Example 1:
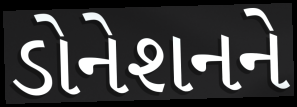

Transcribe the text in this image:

ડોનેશનને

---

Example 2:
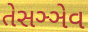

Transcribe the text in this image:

તેસઞ્ઞેવ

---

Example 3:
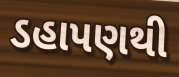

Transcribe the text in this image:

ડહાપણથી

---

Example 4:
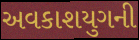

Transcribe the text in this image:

અવકાશયુગની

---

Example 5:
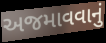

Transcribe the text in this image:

અજમાવવાનું